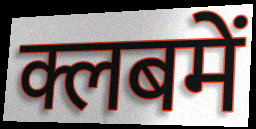
क्लबमें